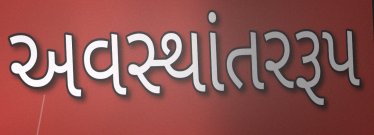
અવસ્થાંતરરૂપ